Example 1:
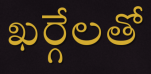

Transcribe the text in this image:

ఖర్గేలతో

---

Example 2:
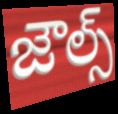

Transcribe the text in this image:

జౌల్స్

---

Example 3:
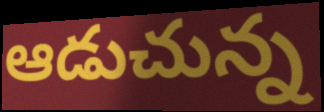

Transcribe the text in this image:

ఆడుచున్న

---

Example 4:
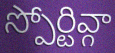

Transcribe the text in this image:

స్పోర్టివ్గా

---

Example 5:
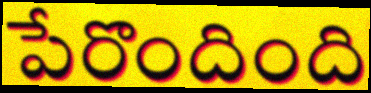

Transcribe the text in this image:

పేరొందింది